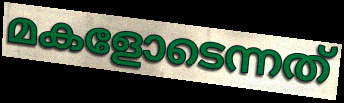
മകളോടെന്നത്